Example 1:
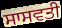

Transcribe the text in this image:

ਸਾਸਵਤੀ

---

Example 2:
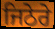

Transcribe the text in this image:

ਜਿਠੇਰੇ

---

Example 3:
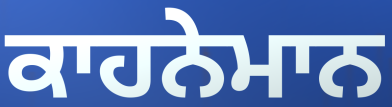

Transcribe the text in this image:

ਕਾਹਨੇਮਾਨ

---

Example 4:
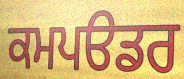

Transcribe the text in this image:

ਕਮਪੳਡਰ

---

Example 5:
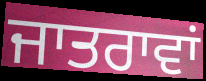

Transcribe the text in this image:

ਜਾਤਰਾਵਾਂ